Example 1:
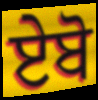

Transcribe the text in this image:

ਏਬੋ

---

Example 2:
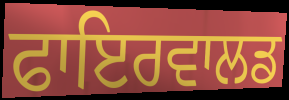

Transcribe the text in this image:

ਫਾਇਰਵਾਲਡ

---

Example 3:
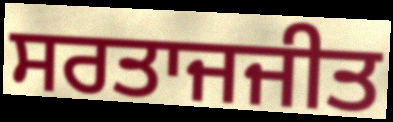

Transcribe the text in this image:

ਸਰਤਾਜਜੀਤ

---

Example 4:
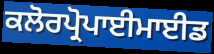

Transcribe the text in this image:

ਕਲੋਰਪ੍ਰੋਪਾਈਮਾਈਡ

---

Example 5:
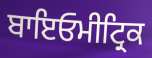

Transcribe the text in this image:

ਬਾਇਓਮੀਟ੍ਰਿਕ